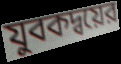
যুবকদ্বয়ের